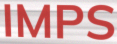
IMPS